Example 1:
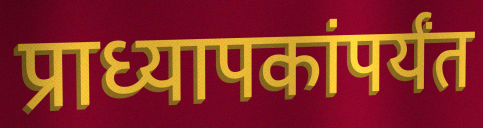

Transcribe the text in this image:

प्राध्यापकांपर्यंत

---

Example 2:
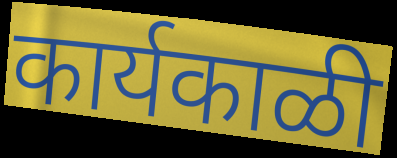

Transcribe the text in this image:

कार्यकाळी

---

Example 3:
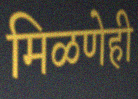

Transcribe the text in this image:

मिळणेही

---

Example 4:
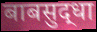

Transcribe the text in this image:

बाबसुद्धा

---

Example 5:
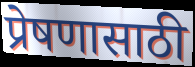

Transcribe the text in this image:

प्रेषणासाठी